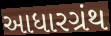
આધારગ્રંથ